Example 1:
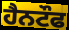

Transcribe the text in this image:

ਹੈਨਟੌਫ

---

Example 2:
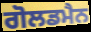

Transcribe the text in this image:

ਗੋਲਡਮੈਨ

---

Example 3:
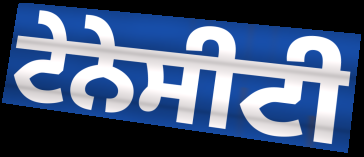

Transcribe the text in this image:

ਟੇਨੇਸੀਟੀ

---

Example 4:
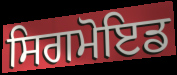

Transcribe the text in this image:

ਸਿਗਮੋਇਡ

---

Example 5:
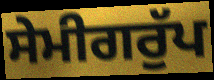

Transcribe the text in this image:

ਸੇਮੀਗਰੁੱਪ